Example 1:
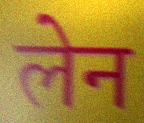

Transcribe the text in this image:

लेन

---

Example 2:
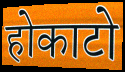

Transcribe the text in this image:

होकाटो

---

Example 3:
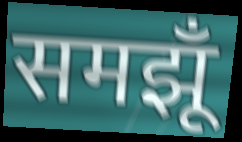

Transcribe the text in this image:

समझूँ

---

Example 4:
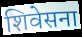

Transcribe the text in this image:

शिवेसना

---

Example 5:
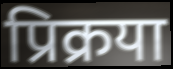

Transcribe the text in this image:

प्रिक्रया